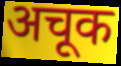
अचूक